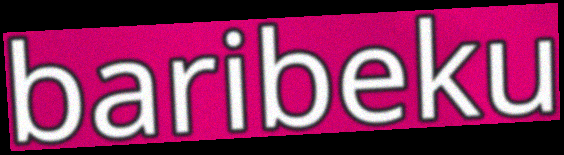
baribeku